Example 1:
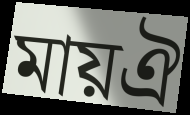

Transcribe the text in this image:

মায়ঐ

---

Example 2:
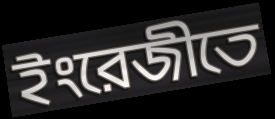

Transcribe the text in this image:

ইংরেজীতে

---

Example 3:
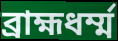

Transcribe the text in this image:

ব্রাহ্মধর্ম্ম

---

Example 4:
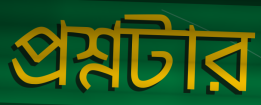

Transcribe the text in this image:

প্রশ্নটার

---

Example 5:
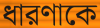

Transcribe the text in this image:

ধারণাকে